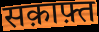
सक़ाफ़्त